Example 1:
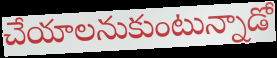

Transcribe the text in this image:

చేయాలనుకుంటున్నాడో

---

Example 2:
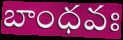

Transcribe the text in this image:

బాంధవః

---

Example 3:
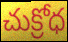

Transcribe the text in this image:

చుక్రోధ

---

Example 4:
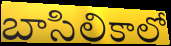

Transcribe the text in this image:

బాసిలికాలో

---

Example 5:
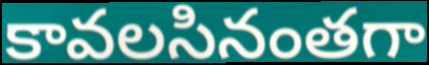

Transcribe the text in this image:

కావలసినంతగా